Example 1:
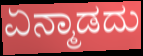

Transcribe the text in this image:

ಏನ್ಮಾಡದು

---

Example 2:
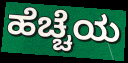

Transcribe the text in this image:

ಹೆಚ್ಚೆಯ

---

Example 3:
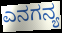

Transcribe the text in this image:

ಎನಗನ್ಯ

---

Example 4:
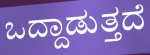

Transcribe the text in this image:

ಒದ್ದಾಡುತ್ತದೆ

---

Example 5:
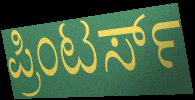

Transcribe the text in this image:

ಪ್ರಿಂಟರ್ಸ್